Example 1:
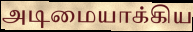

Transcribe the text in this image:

அடிமையாக்கிய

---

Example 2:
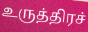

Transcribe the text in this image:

உருத்திரச்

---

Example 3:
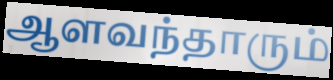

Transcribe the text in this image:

ஆளவந்தாரும்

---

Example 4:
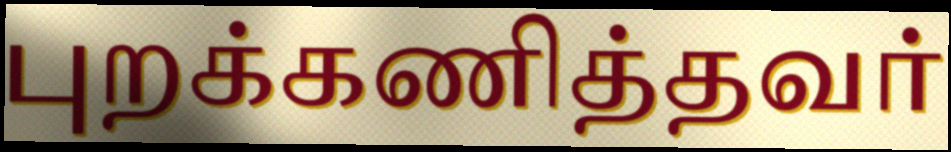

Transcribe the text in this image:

புறக்கணித்தவர்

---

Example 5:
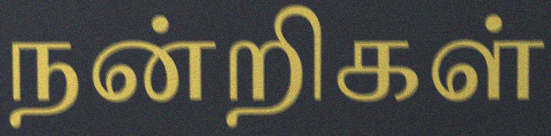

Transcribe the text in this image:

நன்றிகள்